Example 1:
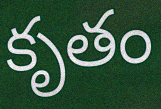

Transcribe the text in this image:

కృతం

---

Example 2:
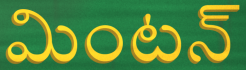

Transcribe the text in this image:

మింటన్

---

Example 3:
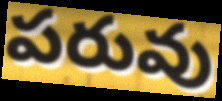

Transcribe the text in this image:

పరువు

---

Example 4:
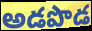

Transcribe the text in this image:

అడపొడ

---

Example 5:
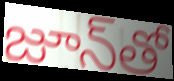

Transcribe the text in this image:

జూన్‌తో